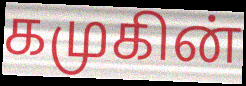
கமுகின்